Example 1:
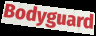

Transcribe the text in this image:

Bodyguard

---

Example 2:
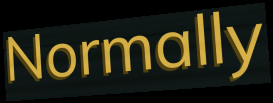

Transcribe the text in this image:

Normally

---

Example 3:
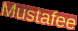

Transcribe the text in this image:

Mustafee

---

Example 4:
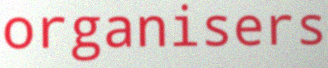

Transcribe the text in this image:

organisers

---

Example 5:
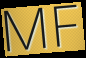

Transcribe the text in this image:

MF